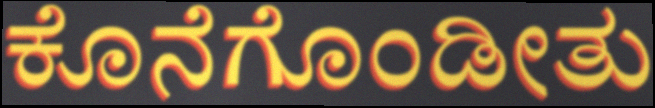
ಕೊನೆಗೊಂಡೀತು